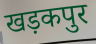
खड़कपुर